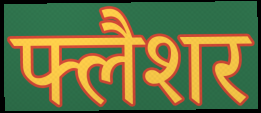
फ्लैशर